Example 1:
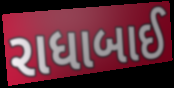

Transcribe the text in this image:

રાધાબાઈ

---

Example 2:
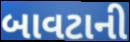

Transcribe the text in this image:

બાવટાની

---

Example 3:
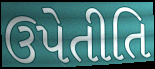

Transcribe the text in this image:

ઉપેતીતિ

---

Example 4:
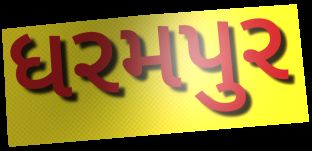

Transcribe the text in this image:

ધરમપુર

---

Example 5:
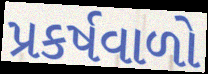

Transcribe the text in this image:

પ્રકર્ષવાળો